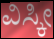
ವಿಸ್ಕೀ